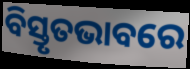
ବିସ୍ତୃତଭାବରେ